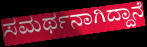
ಸಮರ್ಥನಾಗಿದ್ದಾನೆ